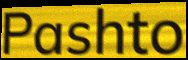
Pashto